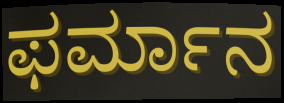
ಫರ್ಮಾನ